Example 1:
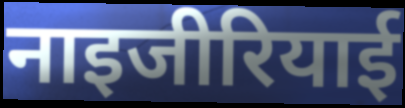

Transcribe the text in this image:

नाइजीरियाई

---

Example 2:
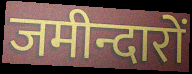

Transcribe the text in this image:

जमीन्दारों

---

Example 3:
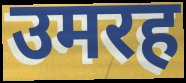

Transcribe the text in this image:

उमरह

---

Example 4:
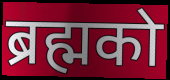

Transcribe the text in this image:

ब्रह्मको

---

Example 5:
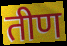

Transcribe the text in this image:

तीण